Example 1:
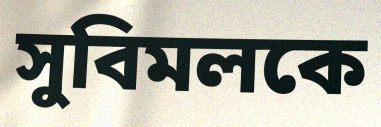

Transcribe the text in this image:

সুবিমলকে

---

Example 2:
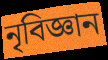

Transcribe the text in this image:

নৃবিজ্ঞান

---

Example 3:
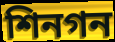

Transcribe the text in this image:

শিনগন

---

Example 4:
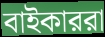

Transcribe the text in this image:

বাইকাররা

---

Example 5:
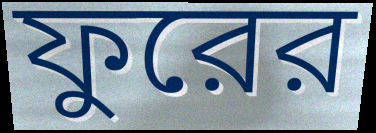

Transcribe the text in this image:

ফুরের